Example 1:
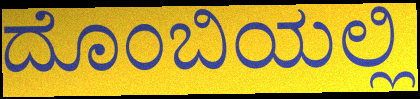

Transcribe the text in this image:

ದೊಂಬಿಯಲ್ಲಿ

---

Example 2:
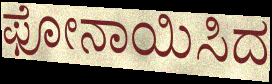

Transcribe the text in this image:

ಫೋನಾಯಿಸಿದ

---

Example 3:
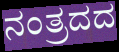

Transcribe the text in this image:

ನಂತ್ರದದ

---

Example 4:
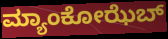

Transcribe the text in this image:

ಮ್ಯಾಂಕೋಝೆಬ್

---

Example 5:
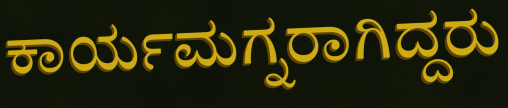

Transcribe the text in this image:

ಕಾರ್ಯಮಗ್ನರಾಗಿದ್ದರು